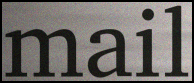
mail